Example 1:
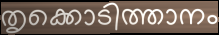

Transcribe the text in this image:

തൃക്കൊടിത്താനം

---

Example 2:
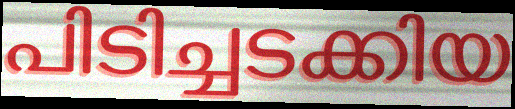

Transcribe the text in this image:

പിടിച്ചടക്കിയ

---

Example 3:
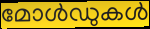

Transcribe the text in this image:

മോൾഡുകൾ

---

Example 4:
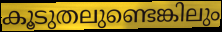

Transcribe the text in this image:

കൂടുതലുണ്ടെങ്കിലും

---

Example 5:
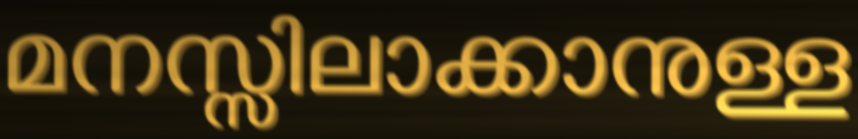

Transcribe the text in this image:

മനസ്സിലാക്കാനുള്ള